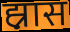
ह्नास